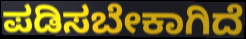
ಪಡಿಸಬೇಕಾಗಿದೆ